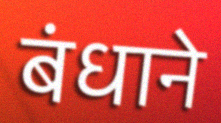
बंधाने